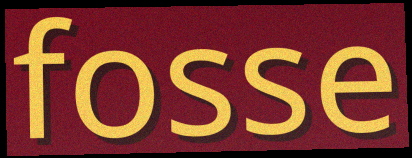
fosse